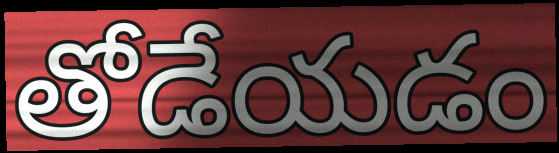
తోడేయడం